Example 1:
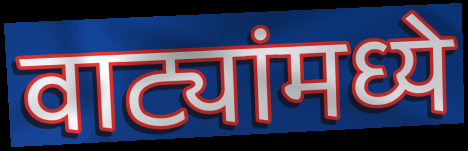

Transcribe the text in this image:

वाट्यांमध्ये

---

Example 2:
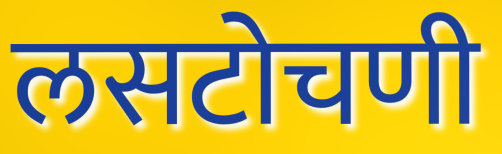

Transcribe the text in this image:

लसटोचणी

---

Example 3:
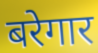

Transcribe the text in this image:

बरेगार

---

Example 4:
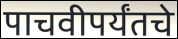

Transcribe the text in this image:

पाचवीपर्यंतचे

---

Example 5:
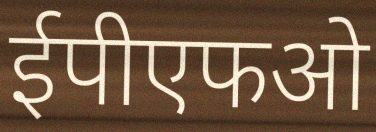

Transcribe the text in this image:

ईपीएफओ